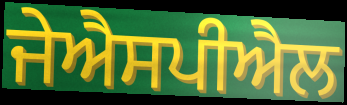
ਜੇਐਸਪੀਐਲ